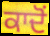
ਕਾਦੋਂ